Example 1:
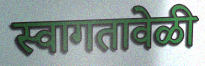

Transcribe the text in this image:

स्वागतावेळी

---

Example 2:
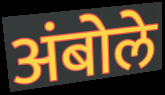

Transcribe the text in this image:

अंबोले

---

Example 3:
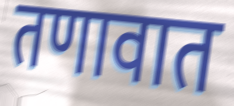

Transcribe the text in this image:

तणावात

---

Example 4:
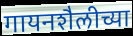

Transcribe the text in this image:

गायनशैलीच्या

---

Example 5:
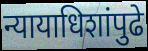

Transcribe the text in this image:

न्यायाधिशांपुढे